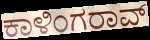
ಕಾಳಿಂಗರಾವ್